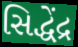
સિદ્ધેંદ્ર